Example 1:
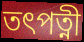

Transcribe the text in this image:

তৎপত্নী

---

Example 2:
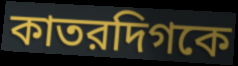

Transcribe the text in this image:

কাতরদিগকে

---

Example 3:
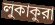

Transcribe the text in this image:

লুকাকুরা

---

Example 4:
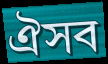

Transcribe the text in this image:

ঐসব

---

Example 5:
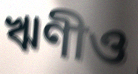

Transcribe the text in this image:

ঋণীও